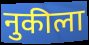
नुकीला